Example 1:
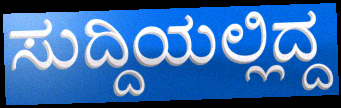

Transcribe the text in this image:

ಸುದ್ದಿಯಲ್ಲಿದ್ದ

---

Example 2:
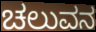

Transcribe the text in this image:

ಚಲುವನ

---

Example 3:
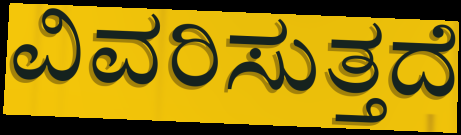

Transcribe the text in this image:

ವಿವರಿಸುತ್ತದೆ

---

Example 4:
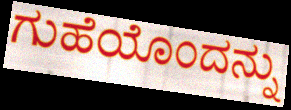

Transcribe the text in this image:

ಗುಹೆಯೊಂದನ್ನು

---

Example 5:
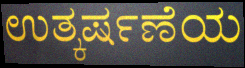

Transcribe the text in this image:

ಉತ್ಕರ್ಷಣೆಯ